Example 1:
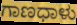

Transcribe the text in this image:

ಗಾಣಧಾಳು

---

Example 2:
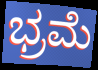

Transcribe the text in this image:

ಭ್ರಮೆ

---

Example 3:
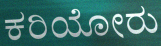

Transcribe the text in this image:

ಕರಿಯೋರು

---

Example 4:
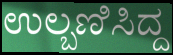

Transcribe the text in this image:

ಉಲ್ಬಣಿಸಿದ್ದ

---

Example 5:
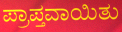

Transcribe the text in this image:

ಪ್ರಾಪ್ತವಾಯಿತು